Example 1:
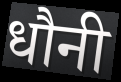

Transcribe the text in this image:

धौनी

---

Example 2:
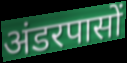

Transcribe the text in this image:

अंडरपासों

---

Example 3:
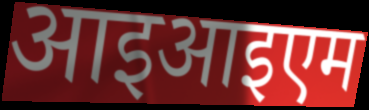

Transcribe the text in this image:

आइआइएम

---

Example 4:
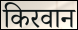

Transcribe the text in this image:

किरवान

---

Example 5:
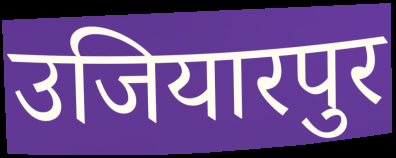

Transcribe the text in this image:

उजियारपुर